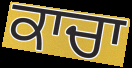
ਕਾਚਾ